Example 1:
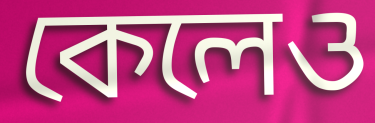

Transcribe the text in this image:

কেলেও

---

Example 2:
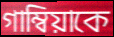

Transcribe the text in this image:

গাম্বিয়াকে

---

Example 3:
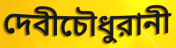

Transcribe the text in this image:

দেবীচৌধুরানী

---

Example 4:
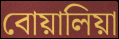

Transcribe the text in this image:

বোয়ালিয়া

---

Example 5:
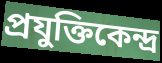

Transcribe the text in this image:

প্রযুক্তিকেন্দ্র